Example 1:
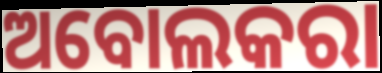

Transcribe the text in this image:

ଅବୋଲକରା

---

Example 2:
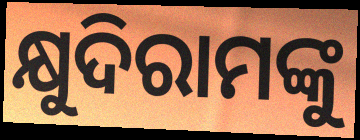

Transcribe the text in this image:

କ୍ଷୁଦିରାମଙ୍କୁ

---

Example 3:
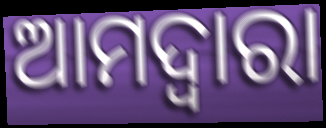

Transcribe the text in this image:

ଆମଦ୍ୱାରା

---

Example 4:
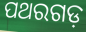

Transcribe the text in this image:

ପଥରଗଡ଼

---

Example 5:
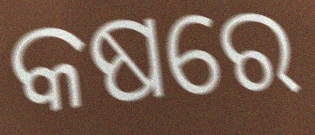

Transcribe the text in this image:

କଷରେ